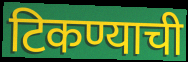
टिकण्याची